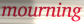
mourning